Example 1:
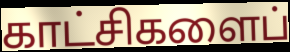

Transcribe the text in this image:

காட்சிகளைப்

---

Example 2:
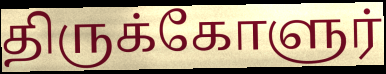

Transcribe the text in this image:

திருக்கோளுர்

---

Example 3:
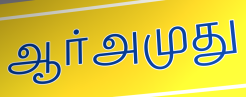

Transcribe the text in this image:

ஆர்அமுது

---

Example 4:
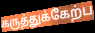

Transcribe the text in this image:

கருத்துக்கேற்ப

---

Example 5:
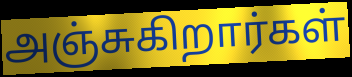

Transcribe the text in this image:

அஞ்சுகிறார்கள்